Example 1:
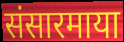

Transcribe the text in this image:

संसारमाया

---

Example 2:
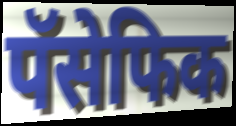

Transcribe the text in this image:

पॅसेफिक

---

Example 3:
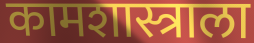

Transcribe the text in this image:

कामशास्त्राला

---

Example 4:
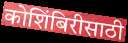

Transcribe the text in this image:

कोशिंबिरीसाठी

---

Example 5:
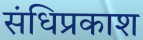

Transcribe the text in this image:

संधिप्रकाश